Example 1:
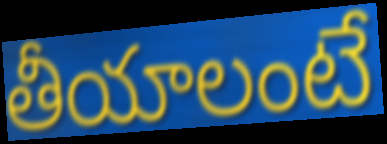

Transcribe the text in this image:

తీయాలంటే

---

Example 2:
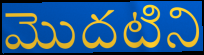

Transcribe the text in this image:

మొదటిని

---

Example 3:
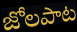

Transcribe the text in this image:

జోలపాట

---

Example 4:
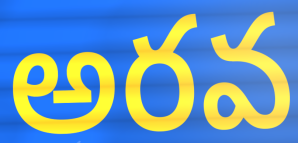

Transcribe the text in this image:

అరవ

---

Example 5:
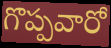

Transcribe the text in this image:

గొప్పవారో